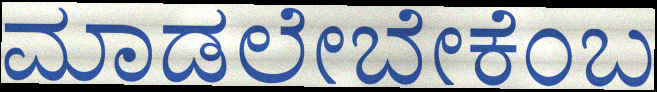
ಮಾಡಲೇಬೇಕೆಂಬ